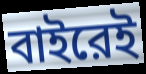
বাইরেই